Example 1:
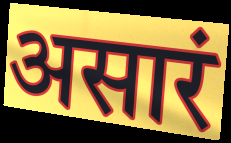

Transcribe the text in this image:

असारं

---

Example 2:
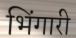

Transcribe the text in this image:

भिंगारी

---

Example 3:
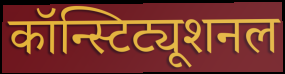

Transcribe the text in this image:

कॉन्स्टिट्यूशनल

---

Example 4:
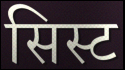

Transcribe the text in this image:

सिस्ट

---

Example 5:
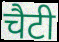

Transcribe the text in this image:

चैटी